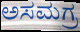
ಅಸಮಗ್ರ